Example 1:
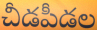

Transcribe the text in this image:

చీడపీడల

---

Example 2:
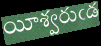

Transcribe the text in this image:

యీశ్వరుఁడ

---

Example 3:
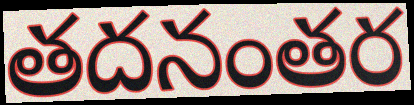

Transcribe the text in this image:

తదనంతర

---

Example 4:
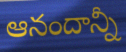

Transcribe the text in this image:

ఆనందాన్నీ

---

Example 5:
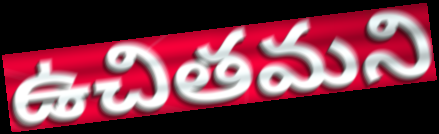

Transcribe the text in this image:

ఉచితమని